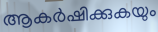
ആകർഷിക്കുകയും